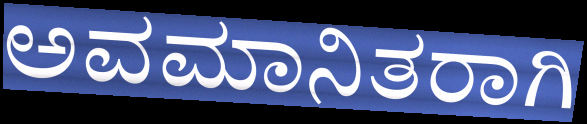
ಅವಮಾನಿತರಾಗಿ